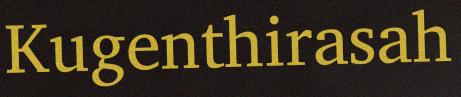
Kugenthirasah